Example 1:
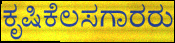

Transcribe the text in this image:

ಕೃಷಿಕೆಲಸಗಾರರು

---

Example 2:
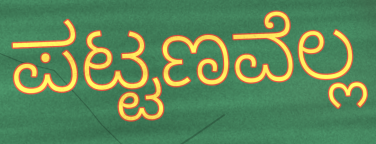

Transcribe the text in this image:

ಪಟ್ಟಣವೆಲ್ಲ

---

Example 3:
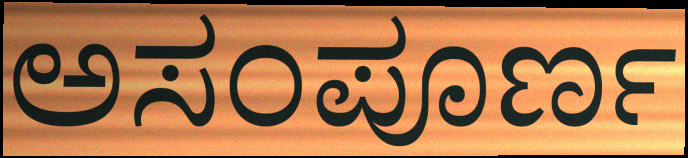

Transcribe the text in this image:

ಅಸಂಪೂರ್ಣ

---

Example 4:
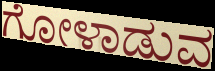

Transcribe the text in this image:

ಗೋಳಾಡುವ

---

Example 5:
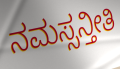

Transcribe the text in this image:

ನಮಸ್ಸನ್ತೀತಿ